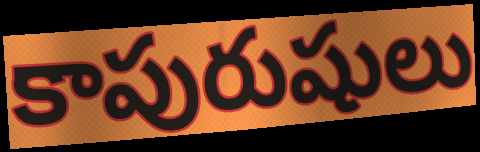
కాపురుషులు